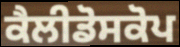
ਕੈਲੀਡੋਸਕੋਪ